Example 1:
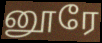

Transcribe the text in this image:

னூரே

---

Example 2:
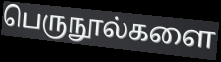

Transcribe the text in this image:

பெருநூல்களை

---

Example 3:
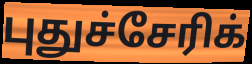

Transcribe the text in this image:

புதுச்சேரிக்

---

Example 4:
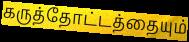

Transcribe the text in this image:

கருத்தோட்டத்தையும்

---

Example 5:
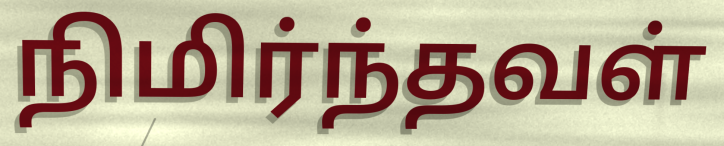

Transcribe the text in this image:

நிமிர்ந்தவள்